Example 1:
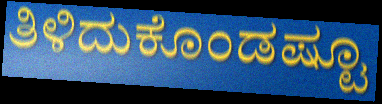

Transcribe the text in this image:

ತಿಳಿದುಕೊಂಡಷ್ಟೂ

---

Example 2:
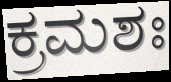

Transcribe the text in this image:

ಕ್ರಮಶಃ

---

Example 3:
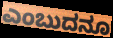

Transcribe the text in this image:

ಎಂಬುದನೂ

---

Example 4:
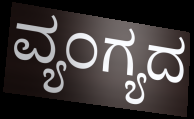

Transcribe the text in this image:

ವ್ಯಂಗ್ಯದ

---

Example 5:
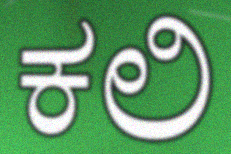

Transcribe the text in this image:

ಕಲಿ